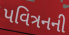
પવિત્રનની